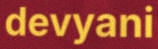
devyani